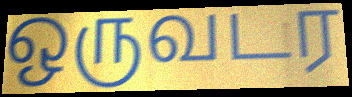
ஒருவடர